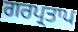
ਗਰਪ੍ਰਤਾਪ